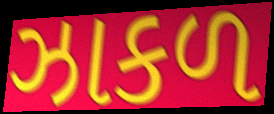
ઝાકળ